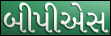
બીપીએસ